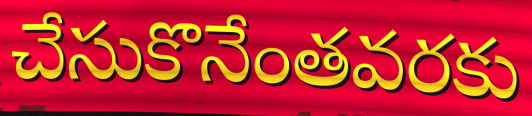
చేసుకొనేంతవరకు